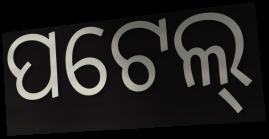
ପଟେଲ୍